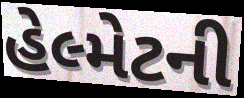
હેલ્મેટની